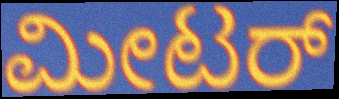
ಮೀಟರ್